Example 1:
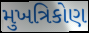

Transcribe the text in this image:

મુખત્રિકોણ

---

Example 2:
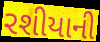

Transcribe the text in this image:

રશીયાની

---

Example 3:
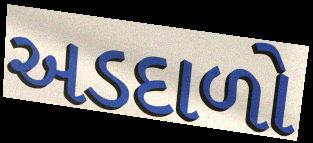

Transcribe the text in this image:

અડદાળો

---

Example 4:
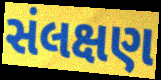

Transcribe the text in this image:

સંલક્ષણ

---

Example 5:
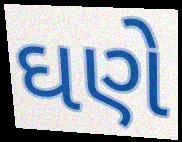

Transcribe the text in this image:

ઘણે